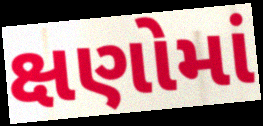
ક્ષણોમાં